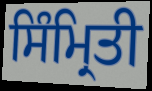
ਸਿੰਮ੍ਰਿਤੀ